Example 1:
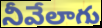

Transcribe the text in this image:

నీవేలాగు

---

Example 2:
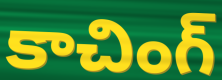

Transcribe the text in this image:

కాచింగ్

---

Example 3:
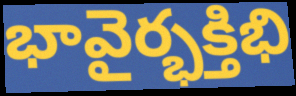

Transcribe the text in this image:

భావైర్భక్తిభి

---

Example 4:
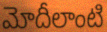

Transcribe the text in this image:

మోదీలాంటి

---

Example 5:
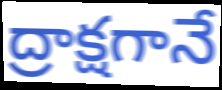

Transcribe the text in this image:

ద్రాక్షగానే